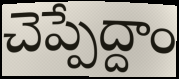
చెప్పేద్దాం